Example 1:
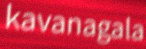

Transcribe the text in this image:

kavanagala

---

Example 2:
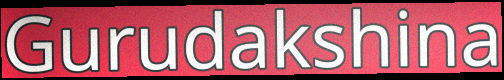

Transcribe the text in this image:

Gurudakshina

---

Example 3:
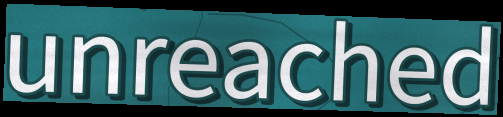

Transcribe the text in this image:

unreached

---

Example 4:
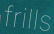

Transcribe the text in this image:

frills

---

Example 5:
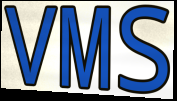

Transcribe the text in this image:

VMS